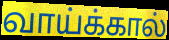
வாய்க்கால்